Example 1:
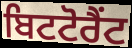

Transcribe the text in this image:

ਬਿਟਟੋਰੈਂਟ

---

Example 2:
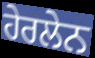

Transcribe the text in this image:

ਹੇਰਲੇਨ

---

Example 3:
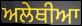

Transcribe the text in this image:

ਅਲੇਥੀਆ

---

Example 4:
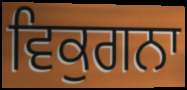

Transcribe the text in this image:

ਵਿਕੁਗਨਾ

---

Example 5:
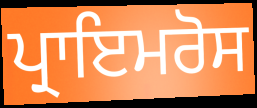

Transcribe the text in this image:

ਪ੍ਰਾਇਮਰੋਸ